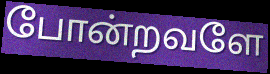
போன்றவளே